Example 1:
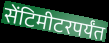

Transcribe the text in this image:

सेंटिमीटरपर्यंत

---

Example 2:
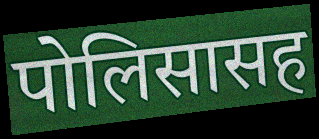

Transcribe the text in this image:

पोलिसासह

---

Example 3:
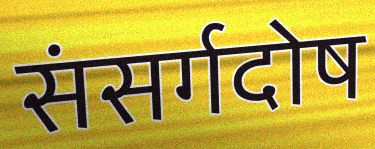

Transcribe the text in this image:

संसर्गदोष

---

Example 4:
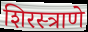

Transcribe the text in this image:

शिरस्त्राणे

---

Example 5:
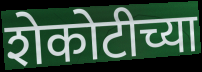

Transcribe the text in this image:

शेकोटीच्या